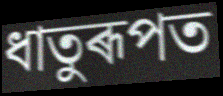
ধাতুৰূপত